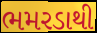
ભમરડાથી